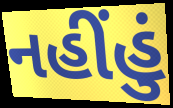
નહીંહું